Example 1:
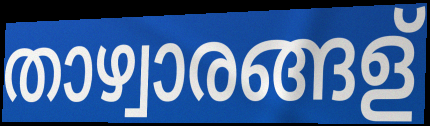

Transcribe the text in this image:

താഴ്വാരങ്ങള്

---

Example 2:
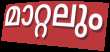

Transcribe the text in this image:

മാറ്റലും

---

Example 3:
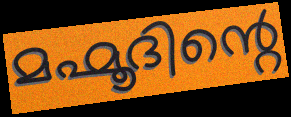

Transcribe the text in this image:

മഹ്മൂദിന്റെ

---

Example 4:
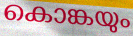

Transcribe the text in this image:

കൊങ്കയും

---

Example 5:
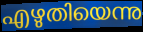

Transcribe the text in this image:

എഴുതിയെന്നു